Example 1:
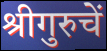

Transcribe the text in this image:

श्रीगुरुचें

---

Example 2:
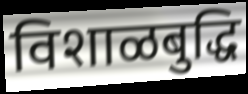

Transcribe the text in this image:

विशाळबुद्धि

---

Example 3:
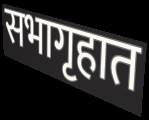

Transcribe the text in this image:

सभागृहात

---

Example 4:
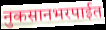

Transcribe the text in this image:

नुकसानभरपाईत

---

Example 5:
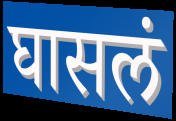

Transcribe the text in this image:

घासलं